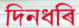
দিনধৰি